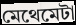
মেথেমেটা